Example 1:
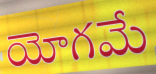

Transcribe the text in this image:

యోగమే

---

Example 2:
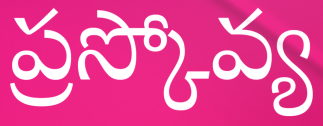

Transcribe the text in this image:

ప్రస్కోవ్య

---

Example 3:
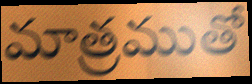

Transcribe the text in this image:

మాత్రముతో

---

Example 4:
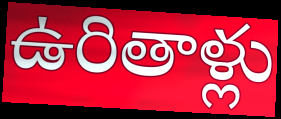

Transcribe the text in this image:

ఉరితాళ్లు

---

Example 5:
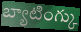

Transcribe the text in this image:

బ్యాటింగ్కు